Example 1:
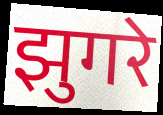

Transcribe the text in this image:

झुगरे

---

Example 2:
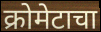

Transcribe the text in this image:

क्रोमेटाचा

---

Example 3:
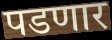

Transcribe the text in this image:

पडणार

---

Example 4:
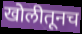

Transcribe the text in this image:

खोलीतूनच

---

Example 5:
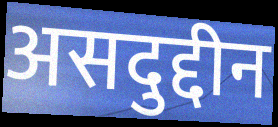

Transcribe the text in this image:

असदुद्दीन